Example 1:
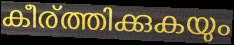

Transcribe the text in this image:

കീര്ത്തിക്കുകയും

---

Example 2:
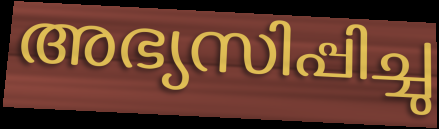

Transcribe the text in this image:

അഭ്യസിപ്പിച്ചു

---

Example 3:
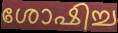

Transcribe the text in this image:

ശോഷിച്ച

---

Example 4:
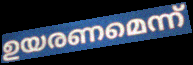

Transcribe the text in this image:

ഉയരണമെന്ന്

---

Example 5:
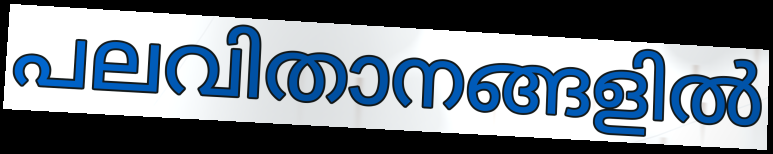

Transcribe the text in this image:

പലവിതാനങ്ങളിൽ